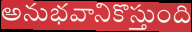
అనుభవానికొస్తుంది